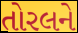
તોરલને